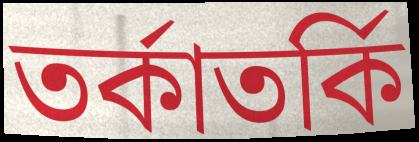
তৰ্কাতৰ্কি